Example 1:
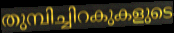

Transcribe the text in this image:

തുമ്പിച്ചിറകുകളുടെ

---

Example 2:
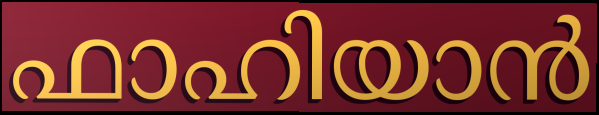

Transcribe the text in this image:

ഫാഹിയാൻ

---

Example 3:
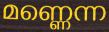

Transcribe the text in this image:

മണ്ണെന്ന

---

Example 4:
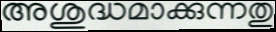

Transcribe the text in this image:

അശുദ്ധമാക്കുന്നതു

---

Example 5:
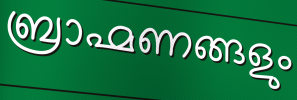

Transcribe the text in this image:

ബ്രാഹ്മണങ്ങളും